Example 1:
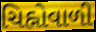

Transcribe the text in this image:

ચિહ્નોવાળી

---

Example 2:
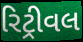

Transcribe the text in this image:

રિટ્રીવલ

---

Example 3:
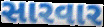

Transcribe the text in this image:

સારવાર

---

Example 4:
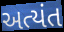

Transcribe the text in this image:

અત્યંત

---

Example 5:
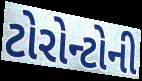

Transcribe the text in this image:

ટોરોન્ટોની